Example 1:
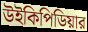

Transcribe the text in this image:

উইকিপিডিয়ার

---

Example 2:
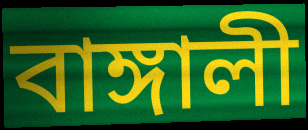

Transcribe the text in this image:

বাঙ্গালী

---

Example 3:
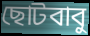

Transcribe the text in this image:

ছোটবাবু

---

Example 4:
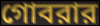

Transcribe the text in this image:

গোবরার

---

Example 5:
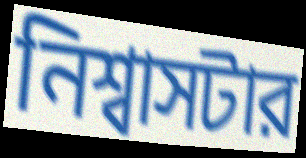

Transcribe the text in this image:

নিশ্বাসটার